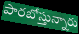
పారబోస్తున్నారు